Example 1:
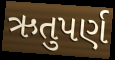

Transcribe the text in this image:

ઋતુપર્ણ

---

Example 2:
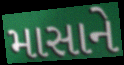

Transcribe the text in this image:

માસાને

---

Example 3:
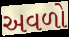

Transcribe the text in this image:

અવળો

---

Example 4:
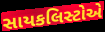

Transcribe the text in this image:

સાયકલિસ્ટોએ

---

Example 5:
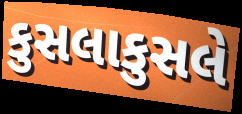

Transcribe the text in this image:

કુસલાકુસલે